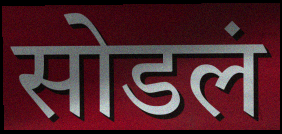
सोडलं